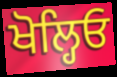
ਖੋਲ੍ਹ੍ਹਿਓ